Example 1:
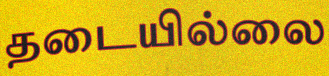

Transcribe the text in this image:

தடையில்லை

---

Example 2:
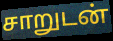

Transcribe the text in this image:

சாறுடன்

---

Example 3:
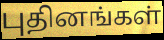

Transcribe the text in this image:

புதினங்கள்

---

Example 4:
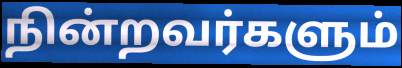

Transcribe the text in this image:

நின்றவர்களும்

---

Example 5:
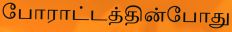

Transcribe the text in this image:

போராட்டத்தின்போது